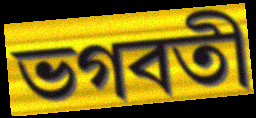
ভগবতী